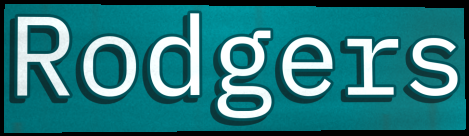
Rodgers